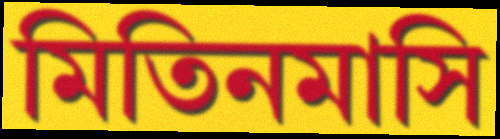
মিতিনমাসি